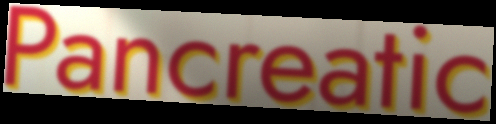
Pancreatic